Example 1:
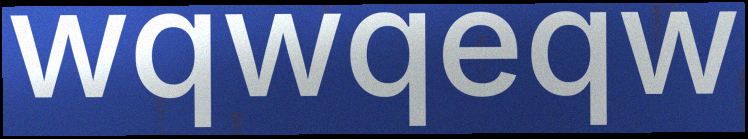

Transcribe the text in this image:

wqwqeqw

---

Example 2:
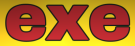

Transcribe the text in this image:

exe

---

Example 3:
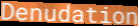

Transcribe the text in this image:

Denudation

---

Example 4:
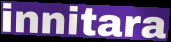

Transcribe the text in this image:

innitara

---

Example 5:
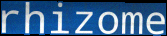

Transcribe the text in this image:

rhizome